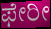
ಫೇರೀ